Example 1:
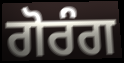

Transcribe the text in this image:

ਗੋਰੰਗ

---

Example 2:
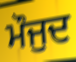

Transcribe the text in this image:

ਮੌਜੁਦ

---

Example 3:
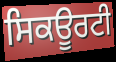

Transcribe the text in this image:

ਸਿਕਊਰਟੀ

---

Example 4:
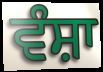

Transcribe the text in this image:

ਵੰਸ਼ਾ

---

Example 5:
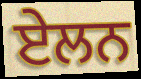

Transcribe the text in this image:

ਏਲਨ